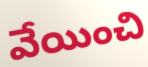
వేయించి